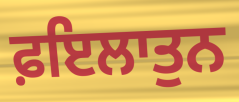
ਫ਼ਇਲਾਤੁਨ